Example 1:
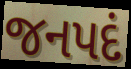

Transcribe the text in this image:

જનપદં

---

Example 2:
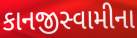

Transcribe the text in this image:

કાનજીસ્વામીના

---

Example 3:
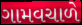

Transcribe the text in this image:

ગામવચાળે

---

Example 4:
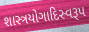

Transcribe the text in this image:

શાસ્ત્રયોગાદિસ્વરૂપ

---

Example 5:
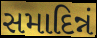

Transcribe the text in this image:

સમાદિન્નં